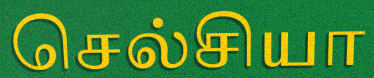
செல்சியா